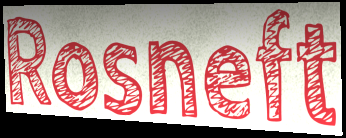
Rosneft